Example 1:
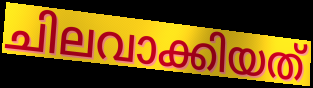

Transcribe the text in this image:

ചിലവാക്കിയത്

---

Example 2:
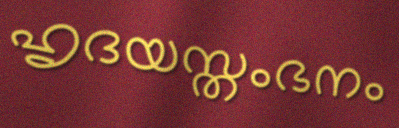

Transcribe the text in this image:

ഹൃദയസ്തംഭനം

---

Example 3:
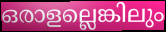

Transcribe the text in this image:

ഒരാളല്ലെങ്കിലും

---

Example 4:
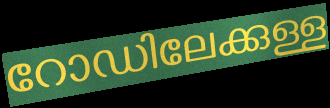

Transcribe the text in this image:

റോഡിലേക്കുള്ള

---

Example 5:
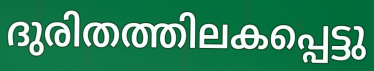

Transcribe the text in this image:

ദുരിതത്തിലകപ്പെട്ടു